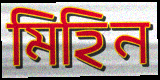
মিহিন